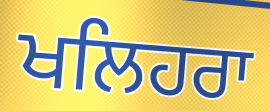
ਖਲਿਹਰਾ